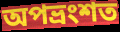
অপভ্ৰংশত